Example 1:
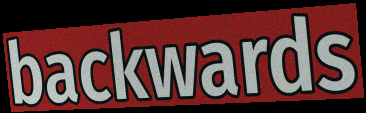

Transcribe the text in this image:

backwards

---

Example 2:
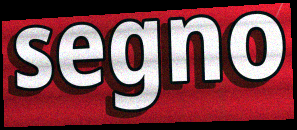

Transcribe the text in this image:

segno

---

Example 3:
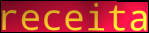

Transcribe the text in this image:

receita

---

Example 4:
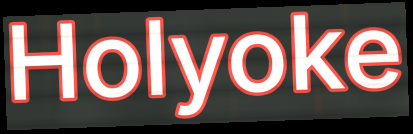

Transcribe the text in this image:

Holyoke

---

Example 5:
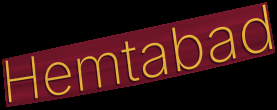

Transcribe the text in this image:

Hemtabad